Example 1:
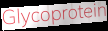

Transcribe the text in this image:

Glycoprotein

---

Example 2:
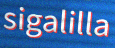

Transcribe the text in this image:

sigalilla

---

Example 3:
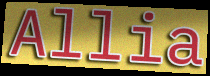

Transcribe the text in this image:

Allia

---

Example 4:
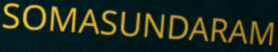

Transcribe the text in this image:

SOMASUNDARAM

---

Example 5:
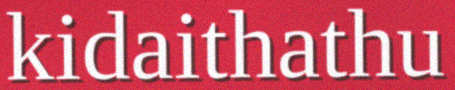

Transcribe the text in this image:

kidaithathu